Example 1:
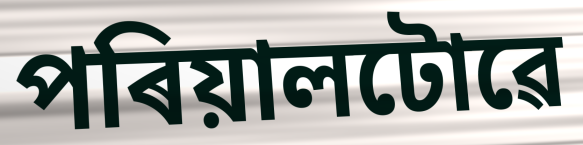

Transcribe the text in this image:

পৰিয়ালটোৱে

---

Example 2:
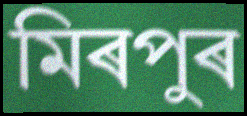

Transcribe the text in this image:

মিৰপুৰ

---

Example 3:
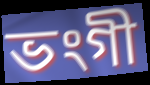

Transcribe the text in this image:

ভংগী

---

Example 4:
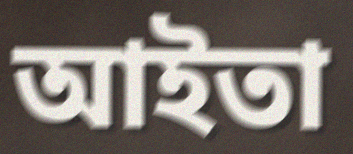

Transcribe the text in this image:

আইতা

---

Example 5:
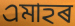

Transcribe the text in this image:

এমাহৰ